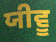
ਯੀਵੂ